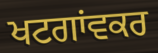
ਖਟਗਾਂਵਕਰ